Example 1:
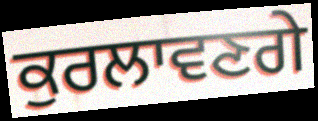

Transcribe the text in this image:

ਕੁਰਲਾਵਣਗੇ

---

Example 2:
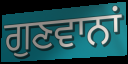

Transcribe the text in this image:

ਗੁਣਵਾਨਾਂ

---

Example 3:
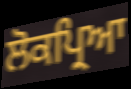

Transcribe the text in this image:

ਲੋਕਪ੍ਰਿਆ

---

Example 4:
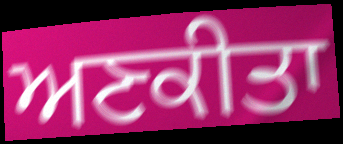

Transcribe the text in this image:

ਅਣਕੀਤਾ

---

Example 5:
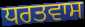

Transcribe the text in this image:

ਧਰਤਵਾਸ